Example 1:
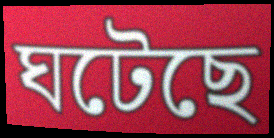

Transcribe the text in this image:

ঘটেছে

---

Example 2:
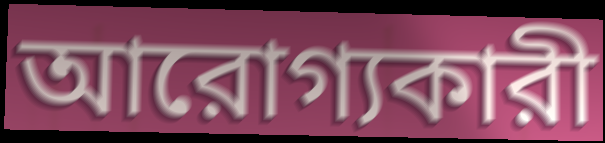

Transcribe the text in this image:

আরোগ্যকারী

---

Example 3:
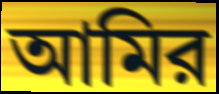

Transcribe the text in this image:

আমির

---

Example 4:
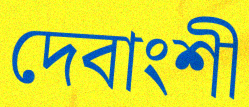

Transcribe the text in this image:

দেবাংশী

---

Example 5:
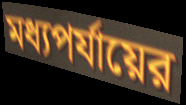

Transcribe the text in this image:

মধ্যপর্যায়ের